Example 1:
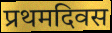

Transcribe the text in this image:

प्रथमदिवस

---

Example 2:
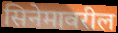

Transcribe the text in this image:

सिनेमावरील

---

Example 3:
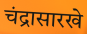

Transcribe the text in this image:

चंद्रासारखे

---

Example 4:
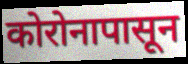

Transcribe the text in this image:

कोरोनापासून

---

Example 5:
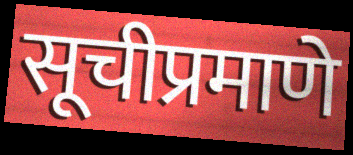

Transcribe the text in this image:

सूचीप्रमाणे